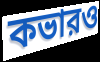
কভারও